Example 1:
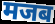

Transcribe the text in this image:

मजब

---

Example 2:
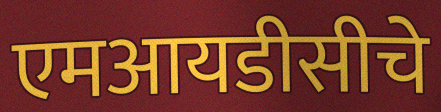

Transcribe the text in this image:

एमआयडीसीचे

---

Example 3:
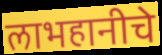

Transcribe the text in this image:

लाभहानीचे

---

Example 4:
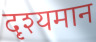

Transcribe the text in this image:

दृश्यमान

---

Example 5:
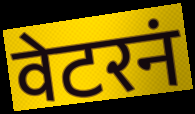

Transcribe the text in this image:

वेटरनं